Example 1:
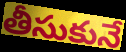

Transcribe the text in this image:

తీసుకునే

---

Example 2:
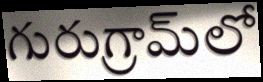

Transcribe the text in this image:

గురుగ్రామ్‌లో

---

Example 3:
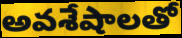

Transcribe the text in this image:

అవశేషాలతో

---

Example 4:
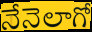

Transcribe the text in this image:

నేనెలాగో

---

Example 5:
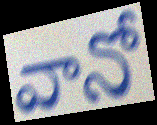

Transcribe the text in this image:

వానో